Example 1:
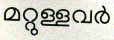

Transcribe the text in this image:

മറ്റുള്ളവർ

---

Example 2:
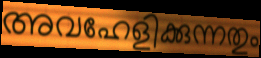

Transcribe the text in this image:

അവഹേളിക്കുന്നതും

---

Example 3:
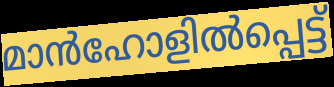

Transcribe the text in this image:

മാൻഹോളിൽപ്പെട്ട്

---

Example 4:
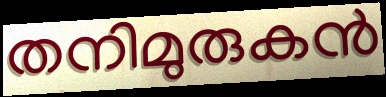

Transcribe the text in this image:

തനിമുരുകൻ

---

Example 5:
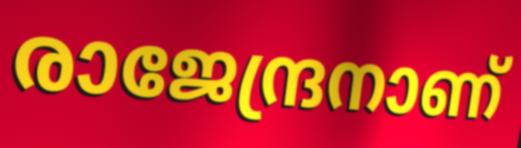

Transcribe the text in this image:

രാജേന്ദ്രനാണ്